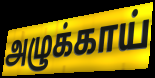
அழுக்காய்